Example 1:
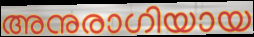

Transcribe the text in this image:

അനുരാഗിയായ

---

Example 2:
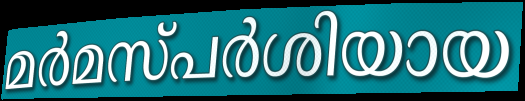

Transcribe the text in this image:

മർമസ്പർശിയായ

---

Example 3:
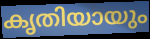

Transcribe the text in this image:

കൃതിയായും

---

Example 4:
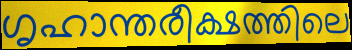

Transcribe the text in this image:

ഗൃഹാന്തരീക്ഷത്തിലെ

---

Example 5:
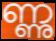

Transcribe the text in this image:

ണ്ണു